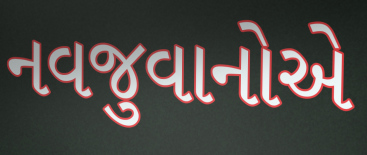
નવજુવાનોએ